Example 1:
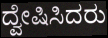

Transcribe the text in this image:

ದ್ವೇಷಿಸಿದರು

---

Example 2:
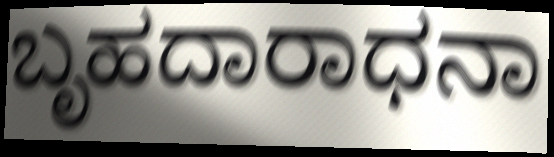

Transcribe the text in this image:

ಬೃಹದಾರಾಧನಾ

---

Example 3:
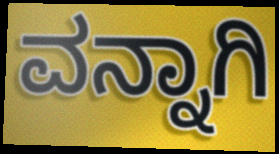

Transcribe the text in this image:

ವನ್ನಾಗಿ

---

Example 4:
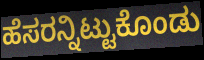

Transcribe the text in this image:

ಹೆಸರನ್ನಿಟ್ಟುಕೊಂಡು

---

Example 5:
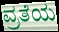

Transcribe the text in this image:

ವ್ರತೆಯ